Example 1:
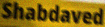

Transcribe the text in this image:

Shabdaved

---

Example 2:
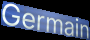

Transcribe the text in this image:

Germain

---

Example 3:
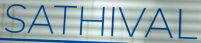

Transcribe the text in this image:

SATHIVAL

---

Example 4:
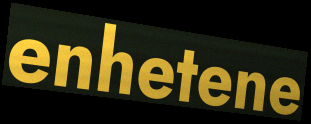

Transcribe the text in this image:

enhetene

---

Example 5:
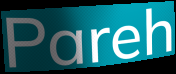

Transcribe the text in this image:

Pareh